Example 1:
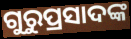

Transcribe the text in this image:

ଗୁରୁପ୍ରସାଦଙ୍କ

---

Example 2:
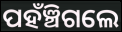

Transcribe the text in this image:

ପହଁଞ୍ଚିଗଲେ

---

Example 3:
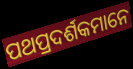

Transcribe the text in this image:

ପଥପ୍ରଦର୍ଶକମାନେ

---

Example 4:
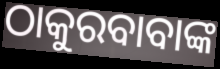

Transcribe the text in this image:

ଠାକୁରବାବାଙ୍କ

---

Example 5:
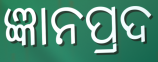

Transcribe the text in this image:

ଜ୍ଞାନପ୍ରଦ